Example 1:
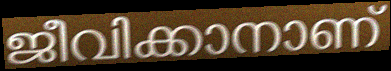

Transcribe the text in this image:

ജീവിക്കാനാണ്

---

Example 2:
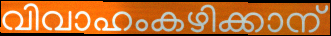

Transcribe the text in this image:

വിവാഹംകഴിക്കാന്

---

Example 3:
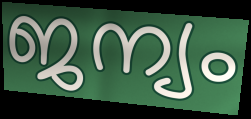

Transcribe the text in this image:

ജന്യം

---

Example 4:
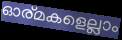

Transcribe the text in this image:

ഓര്മകളെല്ലാം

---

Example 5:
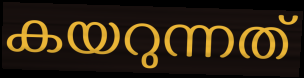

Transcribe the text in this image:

കയറുന്നത്